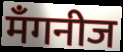
मँगनीज